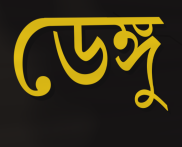
ডেঙ্গু